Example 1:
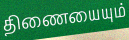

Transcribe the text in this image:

திணையையும்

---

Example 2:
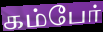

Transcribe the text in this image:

கம்பேர்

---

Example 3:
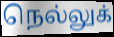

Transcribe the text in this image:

நெல்லுக்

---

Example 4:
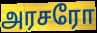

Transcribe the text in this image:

அரசரோ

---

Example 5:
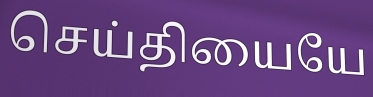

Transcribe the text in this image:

செய்தியையே